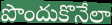
పొందుకొనేలా